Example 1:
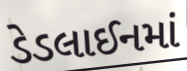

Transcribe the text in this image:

ડેડલાઈનમાં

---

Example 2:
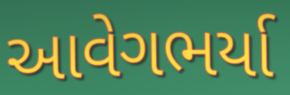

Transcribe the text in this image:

આવેગભર્યા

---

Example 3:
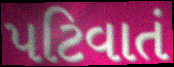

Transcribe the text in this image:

પટિવાતં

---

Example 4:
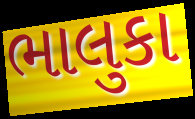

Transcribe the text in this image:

ભાલુકા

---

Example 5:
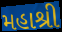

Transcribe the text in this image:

મહાશ્રી